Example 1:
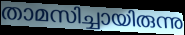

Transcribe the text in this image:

താമസിച്ചായിരുന്നു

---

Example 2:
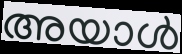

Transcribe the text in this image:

അയാൾ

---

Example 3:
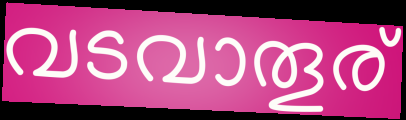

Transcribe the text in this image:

വടവാതൂര്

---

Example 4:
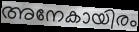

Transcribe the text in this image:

അനേകായിരം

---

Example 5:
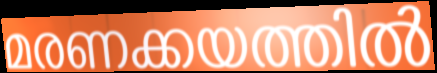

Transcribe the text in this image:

മരണക്കയത്തിൽ